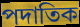
পদাতিক